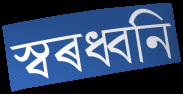
স্বৰধ্বনি